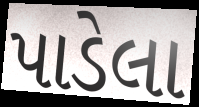
પાડેલા